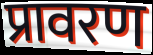
प्रावरण